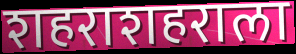
शहराशहराला